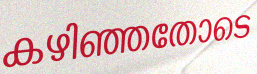
കഴിഞ്ഞതോടെ